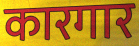
कारगार